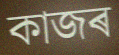
কাজৰ